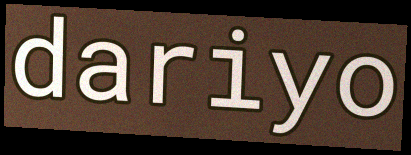
dariyo